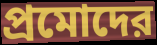
প্রমোদের